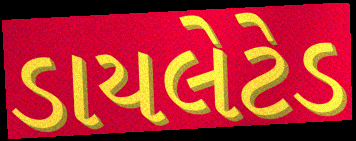
ડાયલેટેડ